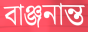
বাঞ্জনান্ত